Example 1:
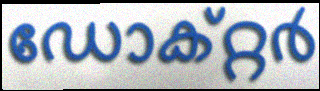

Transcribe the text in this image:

ഡോക്റ്റർ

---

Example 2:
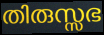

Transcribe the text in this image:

തിരുസ്സഭ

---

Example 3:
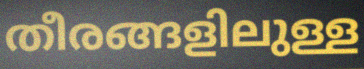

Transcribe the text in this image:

തീരങ്ങളിലുള്ള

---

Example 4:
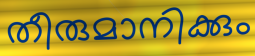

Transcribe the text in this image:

തീരുമാനിക്കും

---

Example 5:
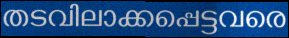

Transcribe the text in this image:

തടവിലാക്കപ്പെട്ടവരെ